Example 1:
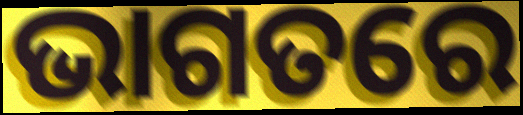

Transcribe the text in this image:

ଭାଗତରେ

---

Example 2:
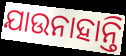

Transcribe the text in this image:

ଯାଉନାହାନ୍ତି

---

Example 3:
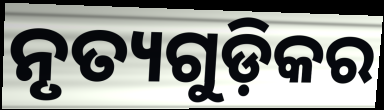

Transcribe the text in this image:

ନୃତ୍ୟଗୁଡ଼ିକର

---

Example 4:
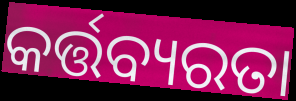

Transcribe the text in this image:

କର୍ତ୍ତବ୍ୟରତା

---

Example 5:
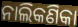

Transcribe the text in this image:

ନାଲିକଣିକା